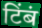
टिंबं